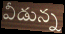
వీడున్న